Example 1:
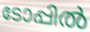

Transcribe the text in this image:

ടോപ്പിൽ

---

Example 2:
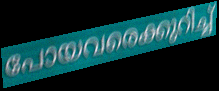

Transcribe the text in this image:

പോയവരെക്കുറിച്ച്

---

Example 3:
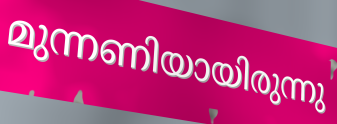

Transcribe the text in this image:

മുന്നണിയായിരുന്നു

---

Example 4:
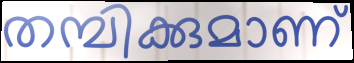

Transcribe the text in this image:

തമ്പിക്കുമാണ്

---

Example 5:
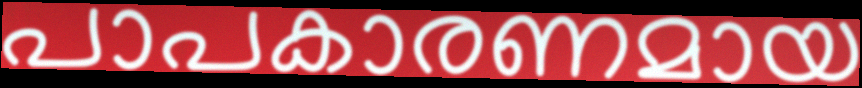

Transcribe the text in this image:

പാപകാരണമായ